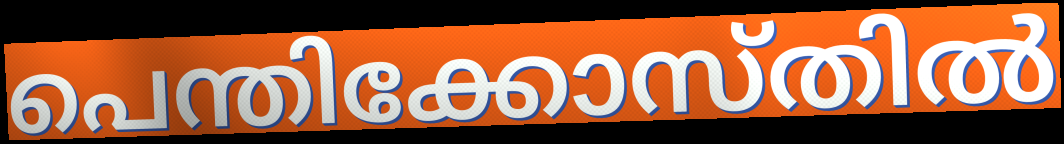
പെന്തിക്കോസ്തിൽ